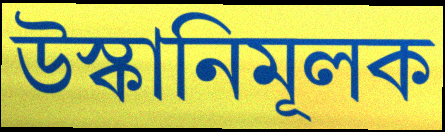
উস্কানিমূলক